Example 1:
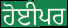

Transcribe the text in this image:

ਹੋਈਪਰ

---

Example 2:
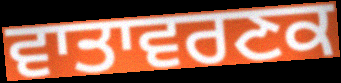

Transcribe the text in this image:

ਵਾਤਾਵਰਣਕ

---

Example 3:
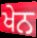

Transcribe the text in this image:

ਖੇਨ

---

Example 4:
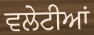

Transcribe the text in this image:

ਵਲੇਟੀਆਂ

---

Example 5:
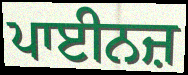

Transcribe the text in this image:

ਪਾਈਨਜ਼